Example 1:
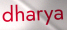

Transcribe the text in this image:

dharya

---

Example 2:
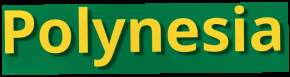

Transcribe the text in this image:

Polynesia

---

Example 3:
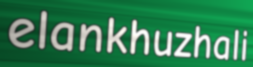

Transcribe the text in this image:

elankhuzhali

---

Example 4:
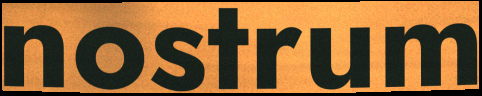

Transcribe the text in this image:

nostrum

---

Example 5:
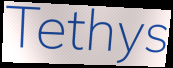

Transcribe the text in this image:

Tethys